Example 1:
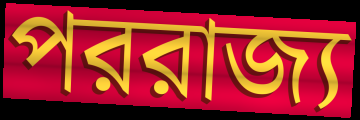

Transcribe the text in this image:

পররাজ্য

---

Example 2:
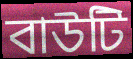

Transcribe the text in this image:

বাউটি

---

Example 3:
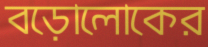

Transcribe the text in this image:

বড়োলোকের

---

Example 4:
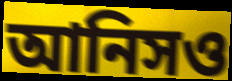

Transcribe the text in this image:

আনিসও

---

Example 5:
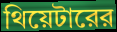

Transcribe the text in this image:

থিয়েটারের